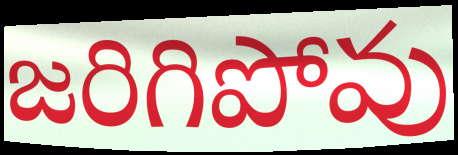
జరిగిపోవు